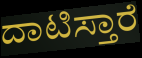
ದಾಟಿಸ್ತಾರೆ